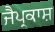
ਜੈਪ੍ਰਕਾਸ਼